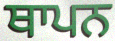
ਥਾਪਨ